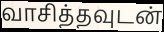
வாசித்தவுடன்